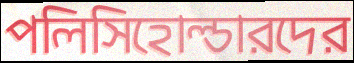
পলিসিহোল্ডারদের